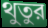
থুতুর